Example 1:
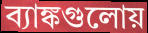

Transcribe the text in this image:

ব্যাঙ্কগুলোয়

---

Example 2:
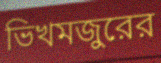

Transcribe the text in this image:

ভিখমজুরের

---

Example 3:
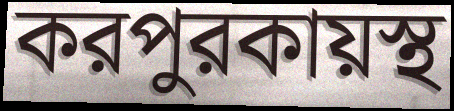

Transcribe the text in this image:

করপুরকায়স্থ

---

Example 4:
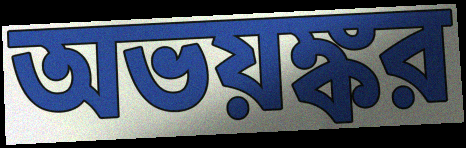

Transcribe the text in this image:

অভয়ঙ্কর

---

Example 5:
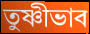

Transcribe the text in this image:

তুষ্ণীভাব